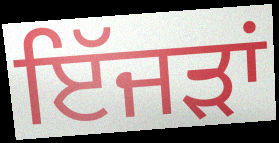
ਇੱਜੜਾਂ